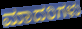
ಮಾದರಿಗಳು